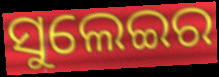
ସୁଲେଇର